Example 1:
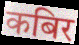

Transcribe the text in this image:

कबिर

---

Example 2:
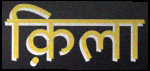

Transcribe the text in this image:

क़िला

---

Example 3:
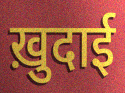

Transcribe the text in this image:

ख़ुदाई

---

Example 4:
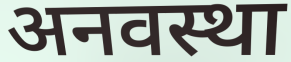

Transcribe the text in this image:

अनवस्था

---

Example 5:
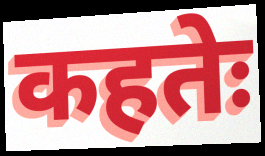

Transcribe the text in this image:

कहतेः